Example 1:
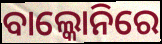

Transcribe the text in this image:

ବାଲ୍କୋନିରେ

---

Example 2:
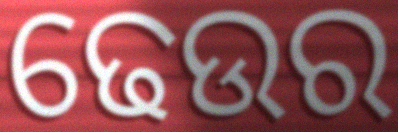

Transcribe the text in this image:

ଢେଉର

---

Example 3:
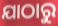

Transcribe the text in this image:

ଯାଠାରୁ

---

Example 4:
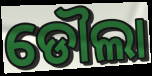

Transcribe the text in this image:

ଡୌଲା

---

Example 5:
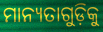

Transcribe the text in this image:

ମାନ୍ୟତାଗୁଡ଼ିକୁ